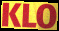
KLO